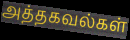
அத்தகவல்கள்